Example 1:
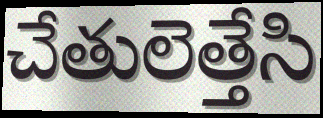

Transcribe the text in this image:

చేతులెత్తేసి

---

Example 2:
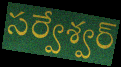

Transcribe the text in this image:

సర్వేశ్వర్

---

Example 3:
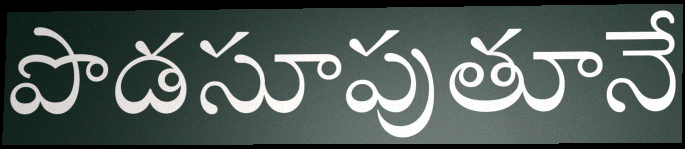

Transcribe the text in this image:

పొడసూపుతూనే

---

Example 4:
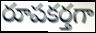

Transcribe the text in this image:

రూపకర్తగా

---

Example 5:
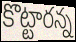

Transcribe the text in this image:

కొట్టారన్న